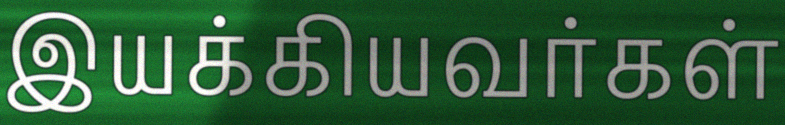
இயக்கியவர்கள்